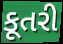
કૂતરી